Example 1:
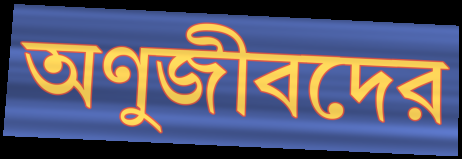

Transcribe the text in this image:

অণুজীবদের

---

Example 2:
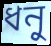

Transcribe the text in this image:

ধনু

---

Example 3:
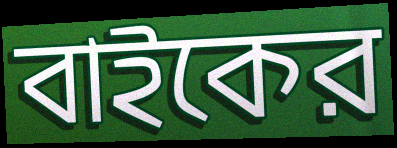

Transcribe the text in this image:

বাইকের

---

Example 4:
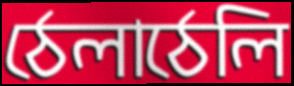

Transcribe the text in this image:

ঠেলাঠেলি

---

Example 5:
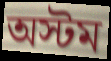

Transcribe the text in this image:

অস্টম